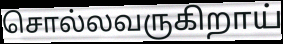
சொல்லவருகிறாய்